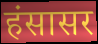
हंसासर